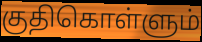
குதிகொள்ளும்